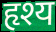
हृश्य